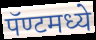
पॅण्टमध्ये